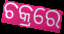
ଚକ୍ରରେ